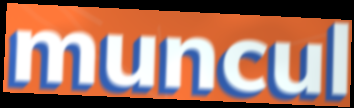
muncul